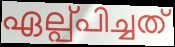
ഏല്പ്പിച്ചത്